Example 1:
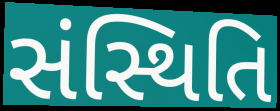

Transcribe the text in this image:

સંસ્થિતિ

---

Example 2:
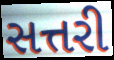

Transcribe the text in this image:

સત્તરી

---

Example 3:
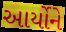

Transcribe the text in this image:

આર્યોને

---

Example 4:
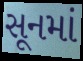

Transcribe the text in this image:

સૂનમાં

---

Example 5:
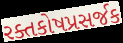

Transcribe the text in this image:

રક્તકોષપ્રસર્જક